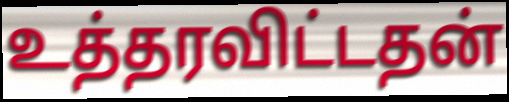
உத்தரவிட்டதன்